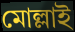
মোল্লাই